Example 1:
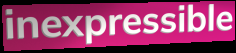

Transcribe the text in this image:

inexpressible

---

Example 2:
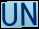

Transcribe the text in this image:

UN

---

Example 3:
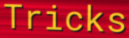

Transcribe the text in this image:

Tricks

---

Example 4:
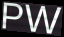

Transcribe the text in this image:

PW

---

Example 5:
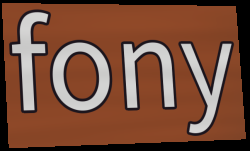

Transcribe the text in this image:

fony